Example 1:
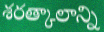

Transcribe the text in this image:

శరత్కాలాన్ని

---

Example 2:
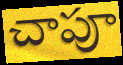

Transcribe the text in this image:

చాపూ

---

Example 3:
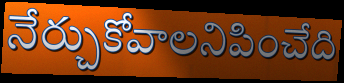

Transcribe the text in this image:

నేర్చుకోవాలనిపించేది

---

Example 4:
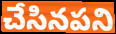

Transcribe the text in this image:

చేసినపని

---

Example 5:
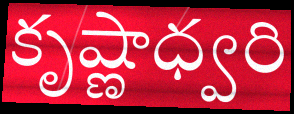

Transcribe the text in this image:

కృష్ణాధ్వరి